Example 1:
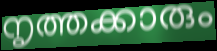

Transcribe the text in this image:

നൃത്തക്കാരും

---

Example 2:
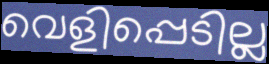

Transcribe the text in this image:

വെളിപ്പെടില്ല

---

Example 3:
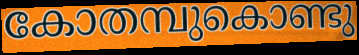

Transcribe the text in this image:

കോതമ്പുകൊണ്ടു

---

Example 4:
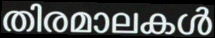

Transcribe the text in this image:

തിരമാലകൾ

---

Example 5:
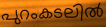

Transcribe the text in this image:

പുറംകടലിൽ